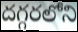
దగ్గరలోని